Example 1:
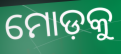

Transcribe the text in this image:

ମୋଡ଼କୁ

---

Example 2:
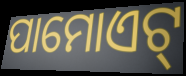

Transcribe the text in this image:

ପାମୋଏଟ୍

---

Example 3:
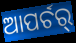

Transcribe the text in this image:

ଆପର୍ଚର୍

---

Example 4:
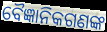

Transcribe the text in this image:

ବୈଜ୍ଞାନିକଗଣଙ୍କ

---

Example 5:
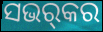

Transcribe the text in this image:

ସଭର୍‌କର